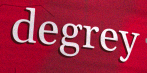
degrey